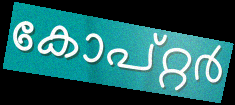
കോപ്റ്റർ